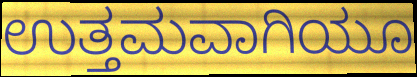
ಉತ್ತಮವಾಗಿಯೂ